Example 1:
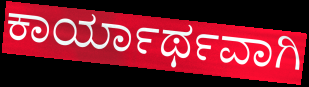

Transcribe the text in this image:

ಕಾರ್ಯಾರ್ಥವಾಗಿ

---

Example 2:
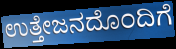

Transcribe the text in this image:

ಉತ್ತೇಜನದೊಂದಿಗೆ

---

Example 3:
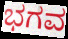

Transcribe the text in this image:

ಭಗವ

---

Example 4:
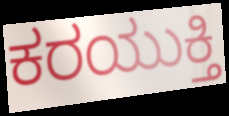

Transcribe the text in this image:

ಕರಯುಕ್ತಿ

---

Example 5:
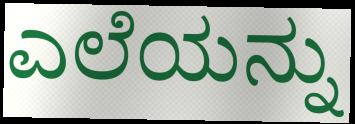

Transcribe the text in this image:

ಎಲೆಯನ್ನು